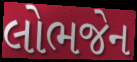
લોભજેન